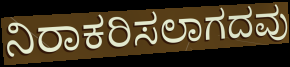
ನಿರಾಕರಿಸಲಾಗದವು